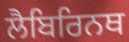
ਲੈਬਿਰਿਨਥ